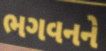
ભગવનને